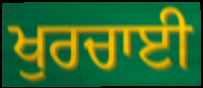
ਖੁਰਚਾਈ